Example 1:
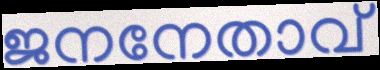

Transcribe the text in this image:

ജനനേതാവ്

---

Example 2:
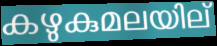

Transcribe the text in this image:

കഴുകുമലയില്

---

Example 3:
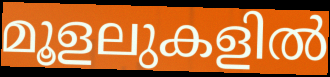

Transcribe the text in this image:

മൂളലുകളിൽ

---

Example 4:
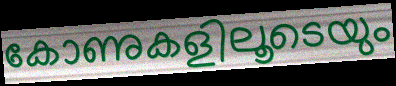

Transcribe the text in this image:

കോണുകളിലൂടെയും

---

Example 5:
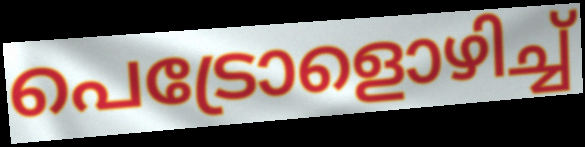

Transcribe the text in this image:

പെട്രോളൊഴിച്ച്